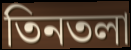
তিনতলা